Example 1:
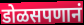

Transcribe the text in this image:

डोळसपणानं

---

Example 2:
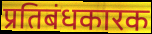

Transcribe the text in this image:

प्रतिबंधकारक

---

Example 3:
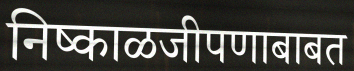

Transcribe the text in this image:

निष्काळजीपणाबाबत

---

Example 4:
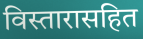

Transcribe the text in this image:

विस्तारासहित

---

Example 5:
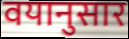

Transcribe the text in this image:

वयानुसार